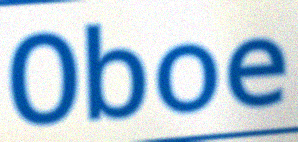
Oboe